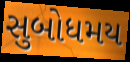
સુબોધમય